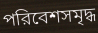
পরিবেশসমৃদ্ধ